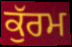
ਕੁੱਰਮ